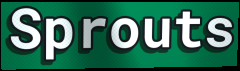
Sprouts